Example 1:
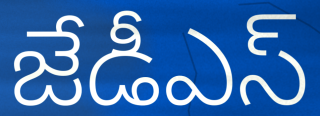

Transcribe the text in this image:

జేడీఎస్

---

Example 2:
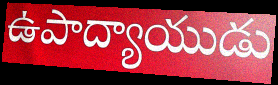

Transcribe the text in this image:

ఉపాద్యాయుడు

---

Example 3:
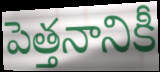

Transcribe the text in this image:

పెత్తనానికీ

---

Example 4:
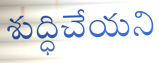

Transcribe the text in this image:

శుద్ధిచేయని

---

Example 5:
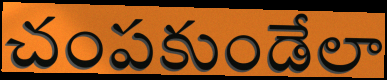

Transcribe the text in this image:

చంపకుండేలా